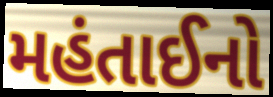
મહંતાઈનો